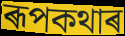
ৰূপকথাৰ